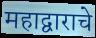
महाद्वाराचे